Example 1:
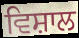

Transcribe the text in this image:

ਵਿਸ਼ਾਲ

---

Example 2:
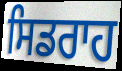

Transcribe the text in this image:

ਸਿਡਰਾਹ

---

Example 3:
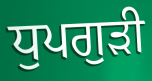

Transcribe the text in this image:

ਧੁਪਗੁੜੀ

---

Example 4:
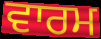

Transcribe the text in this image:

ਵਾਰਮ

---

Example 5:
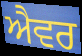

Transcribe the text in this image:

ਐਵਰ